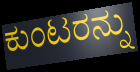
ಕುಂಟರನ್ನು